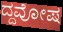
ದ್ದವೋಷ